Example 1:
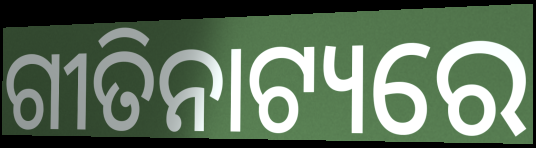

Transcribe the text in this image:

ଗୀତିନାଟ୍ୟରେ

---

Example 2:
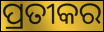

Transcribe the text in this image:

ପ୍ରତୀକର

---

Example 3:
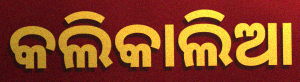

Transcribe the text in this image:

କଲିକାଲିଆ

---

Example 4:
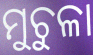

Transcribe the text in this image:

ମୁଚୁଳା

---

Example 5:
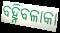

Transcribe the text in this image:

ବହ୍ନିବଳାକା